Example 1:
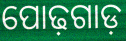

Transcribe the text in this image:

ପୋଢ଼ଗାଡ଼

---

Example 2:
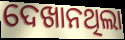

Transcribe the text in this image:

ଦେଖାନଥିଲା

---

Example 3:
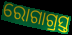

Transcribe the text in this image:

ରୋଗାଗ୍ରସ୍ତ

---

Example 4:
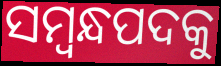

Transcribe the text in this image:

ସମ୍ବନ୍ଧପଦକୁ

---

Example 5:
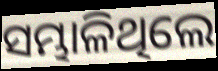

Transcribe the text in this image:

ସମ୍ଭାଳିଥିଲେ